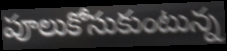
పూలుకోసుకుంటున్న